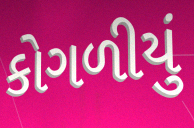
કોગળીયું